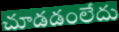
చూడడంలేదు